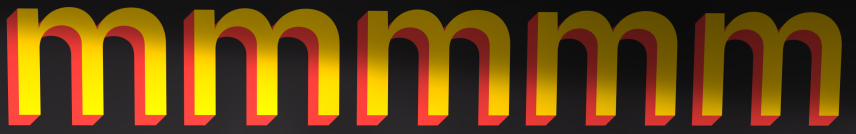
mmmmm